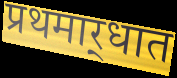
प्रथमार्धात